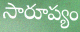
సారూప్యం